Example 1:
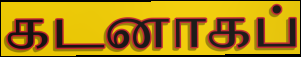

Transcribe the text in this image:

கடனாகப்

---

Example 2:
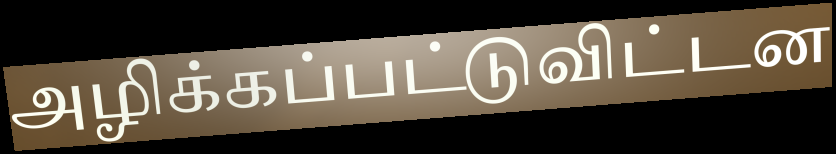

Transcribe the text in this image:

அழிக்கப்பட்டுவிட்டன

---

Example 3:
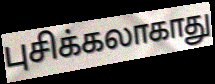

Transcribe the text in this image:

புசிக்கலாகாது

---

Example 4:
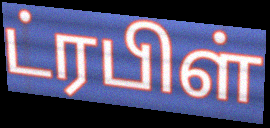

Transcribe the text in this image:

ட்ரபிள்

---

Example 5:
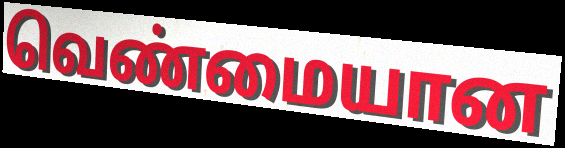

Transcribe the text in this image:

வெண்மையான